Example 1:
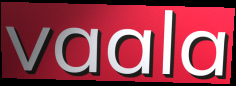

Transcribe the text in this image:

vaala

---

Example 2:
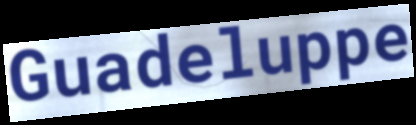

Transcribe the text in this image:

Guadeluppe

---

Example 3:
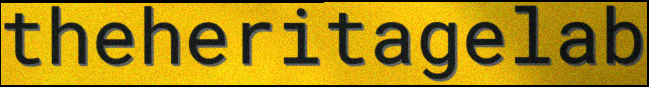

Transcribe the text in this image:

theheritagelab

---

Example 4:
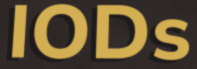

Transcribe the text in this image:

IODs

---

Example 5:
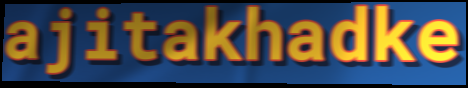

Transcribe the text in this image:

ajitakhadke